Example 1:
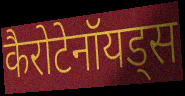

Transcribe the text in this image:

कैरोटेनॉयड्स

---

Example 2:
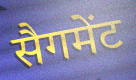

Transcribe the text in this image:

सैगमेंट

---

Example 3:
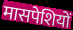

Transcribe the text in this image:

मासपेशियों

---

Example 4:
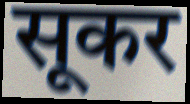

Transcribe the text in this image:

सूकर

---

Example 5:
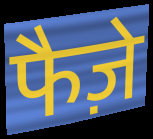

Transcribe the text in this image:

फैज़े